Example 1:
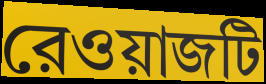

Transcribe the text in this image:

রেওয়াজটি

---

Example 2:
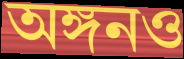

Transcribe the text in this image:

অঙ্গনও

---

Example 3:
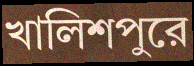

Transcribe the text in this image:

খালিশপুরে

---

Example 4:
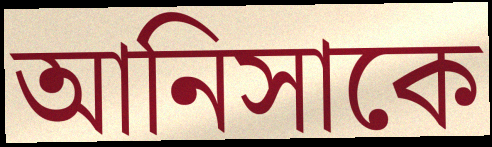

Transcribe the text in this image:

আনিসাকে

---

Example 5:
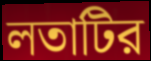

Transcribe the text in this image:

লতাটির